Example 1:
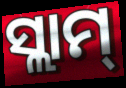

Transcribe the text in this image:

ସ୍ଲାମ୍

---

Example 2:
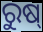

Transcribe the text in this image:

ରୁଷ୍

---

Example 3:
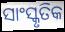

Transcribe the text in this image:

ସାଂସ୍କୃତିକ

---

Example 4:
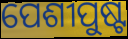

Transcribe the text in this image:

ପେଶୀପୁଷ୍ଟ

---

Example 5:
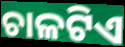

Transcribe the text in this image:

ଚାଳଟିଏ